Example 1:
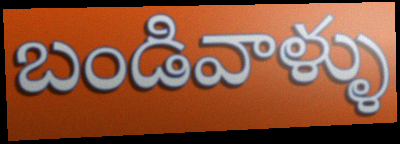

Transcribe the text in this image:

బండివాళ్ళు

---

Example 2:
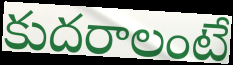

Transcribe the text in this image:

కుదరాలంటే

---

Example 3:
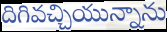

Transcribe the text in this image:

దిగివచ్చియున్నాను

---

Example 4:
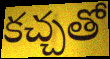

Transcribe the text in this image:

కచ్చతో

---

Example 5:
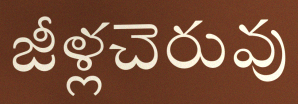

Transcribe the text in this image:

జీళ్లచెరువు